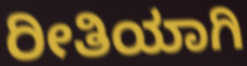
ರೀತಿಯಾಗಿ